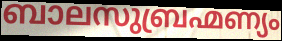
ബാലസുബ്രഹ്മണ്യം